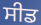
ਸੀਡ